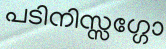
പടിനിസ്സഗ്ഗോ